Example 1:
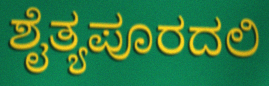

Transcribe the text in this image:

ಶೈತ್ಯಪೂರದಲಿ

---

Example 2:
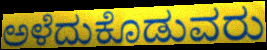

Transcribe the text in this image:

ಅಳೆದುಕೊಡುವರು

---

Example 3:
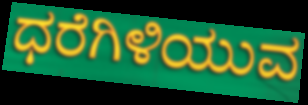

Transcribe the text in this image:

ಧರೆಗಿಳಿಯುವ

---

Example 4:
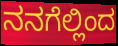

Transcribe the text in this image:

ನನಗೆಲ್ಲಿಂದ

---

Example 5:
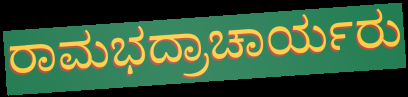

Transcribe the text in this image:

ರಾಮಭದ್ರಾಚಾರ್ಯರು